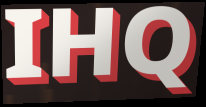
IHQ